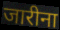
जारीना